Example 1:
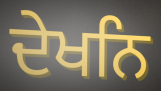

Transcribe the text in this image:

ਦੇਖਨਿ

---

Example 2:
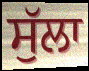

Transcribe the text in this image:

ਸੁੱਲਾ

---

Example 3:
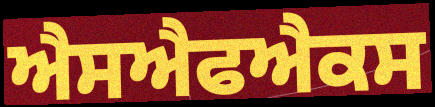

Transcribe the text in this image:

ਐਸਐਫਐਕਸ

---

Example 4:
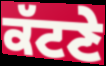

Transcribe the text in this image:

ਕੱਟਣੇ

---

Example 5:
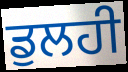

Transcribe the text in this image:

ਡੁਲਹੀ